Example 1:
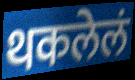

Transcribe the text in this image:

थकलेलं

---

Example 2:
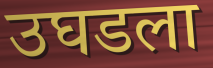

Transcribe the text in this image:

उघडला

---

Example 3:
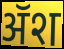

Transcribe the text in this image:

ॲश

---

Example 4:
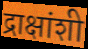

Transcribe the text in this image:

द्राक्षांशी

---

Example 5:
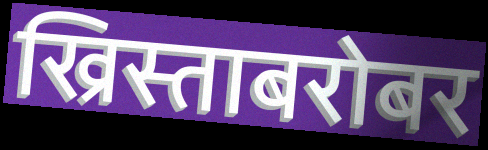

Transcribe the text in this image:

ख्रिस्ताबरोबर